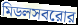
মিডলসবরোর